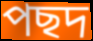
পছদ